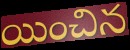
యించిన